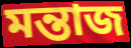
মন্তাজ